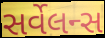
સર્વેલન્સ